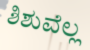
ಶಿಶುವೆಲ್ಲ